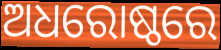
ଅଧରୋଷ୍ଠରେ